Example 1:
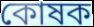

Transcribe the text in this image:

কোষক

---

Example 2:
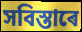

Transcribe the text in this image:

সবিস্তাৰে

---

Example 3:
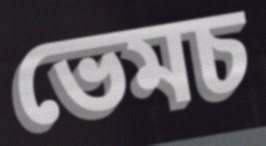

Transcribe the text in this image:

ভেমচ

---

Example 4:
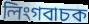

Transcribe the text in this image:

লিংগবাচক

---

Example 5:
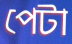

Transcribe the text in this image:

পেটা